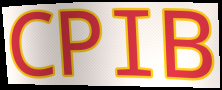
CPIB